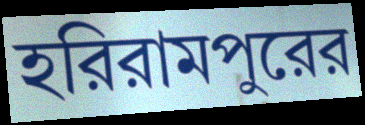
হরিরামপুরের